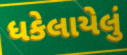
ધકેલાયેલું